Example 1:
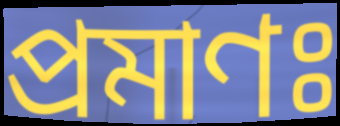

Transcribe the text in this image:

প্রমাণঃ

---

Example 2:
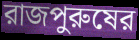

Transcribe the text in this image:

রাজপুরুষের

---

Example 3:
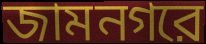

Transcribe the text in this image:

জামনগরে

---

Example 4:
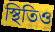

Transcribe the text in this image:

স্থিতিও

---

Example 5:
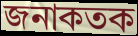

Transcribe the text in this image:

জনাকতক